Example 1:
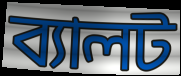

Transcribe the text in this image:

ব্যালট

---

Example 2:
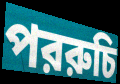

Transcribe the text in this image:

পররুচি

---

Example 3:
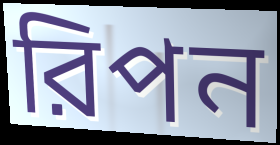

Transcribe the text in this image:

রিপন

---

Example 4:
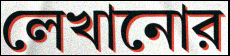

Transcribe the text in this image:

লেখানোর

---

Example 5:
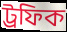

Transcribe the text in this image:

ট্রফিক